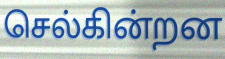
செல்கின்றன